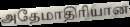
அதேமாதிரியான